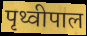
पृथ्वीपाल